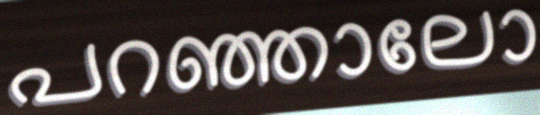
പറഞ്ഞാലോ